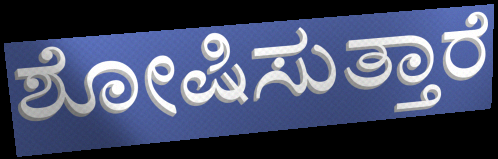
ಶೋಷಿಸುತ್ತಾರೆ